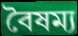
বৈষম্য